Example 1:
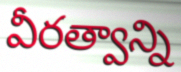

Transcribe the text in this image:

వీరత్వాన్ని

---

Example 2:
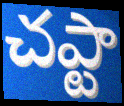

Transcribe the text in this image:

చఎ్టా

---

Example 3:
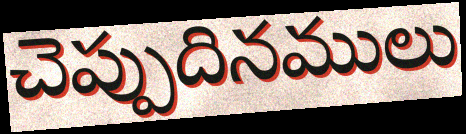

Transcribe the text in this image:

చెప్పుదినములు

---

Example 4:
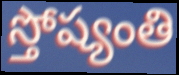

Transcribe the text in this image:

స్తోష్యంతి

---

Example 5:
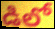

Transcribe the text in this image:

డిలో